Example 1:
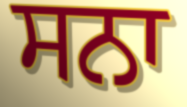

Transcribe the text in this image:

ਸਨਾ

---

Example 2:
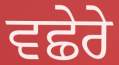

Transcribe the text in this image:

ਵਛੇਰੇ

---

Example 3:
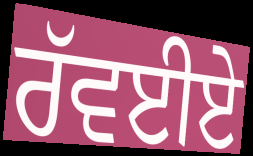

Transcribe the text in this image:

ਰੱਵਈਏ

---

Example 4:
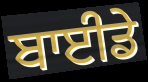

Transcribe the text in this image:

ਬਾਈਡੇ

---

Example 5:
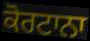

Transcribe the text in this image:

ਕੋਰਟਾਨਾ